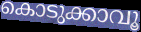
കൊടുക്കാവൂ